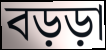
বড়ড়া